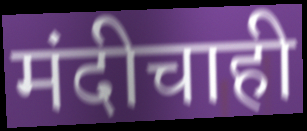
मंदीचाही